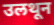
उलथून